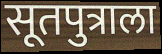
सूतपुत्राला